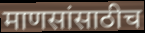
माणसांसाठीच